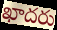
ఖాదరు